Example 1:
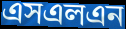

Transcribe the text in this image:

এসএলএন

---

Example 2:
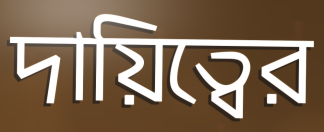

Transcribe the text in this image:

দায়িত্বের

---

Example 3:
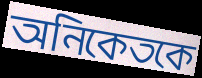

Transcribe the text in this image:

অনিকেতকে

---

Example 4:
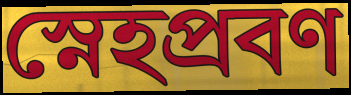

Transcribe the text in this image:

স্নেহপ্রবণ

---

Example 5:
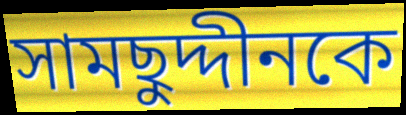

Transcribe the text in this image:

সামছুদ্দীনকে